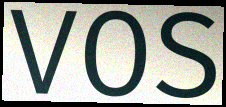
VOS